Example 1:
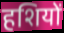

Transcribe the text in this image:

हशियों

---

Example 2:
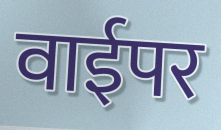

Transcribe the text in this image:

वाईपर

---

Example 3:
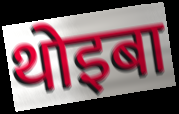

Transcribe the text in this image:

थोइबा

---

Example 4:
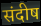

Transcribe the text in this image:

संदीष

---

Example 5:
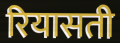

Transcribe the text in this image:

रियासती